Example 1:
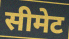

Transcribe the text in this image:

सीमेट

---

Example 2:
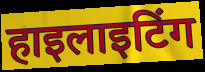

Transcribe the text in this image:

हाइलाइटिंग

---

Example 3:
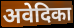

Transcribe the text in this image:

अवेदिका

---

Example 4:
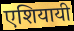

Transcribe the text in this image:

एशियायी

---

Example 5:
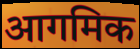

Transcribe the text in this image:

आगमिक